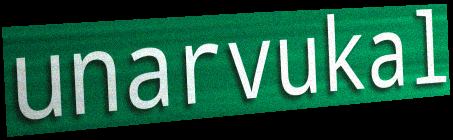
unarvukal